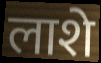
लाशे